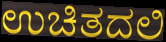
ಉಚಿತದಲಿ